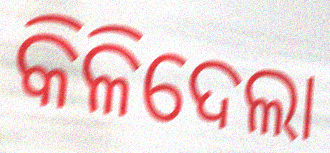
କିଳିଦେଲା